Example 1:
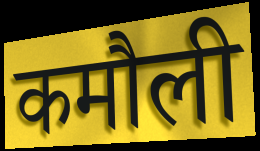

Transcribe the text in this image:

कमौली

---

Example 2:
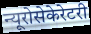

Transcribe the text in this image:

न्यूरोसेकेरेटरी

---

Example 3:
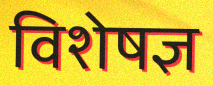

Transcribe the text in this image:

विशेषज्ञ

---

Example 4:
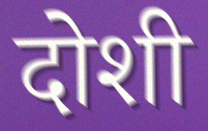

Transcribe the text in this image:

दोशी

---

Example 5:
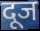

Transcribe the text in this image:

दूज